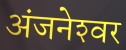
अंजनेश्वर